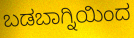
ಬಡಬಾಗ್ನಿಯಿಂದ